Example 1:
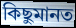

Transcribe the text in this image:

কিছুমানত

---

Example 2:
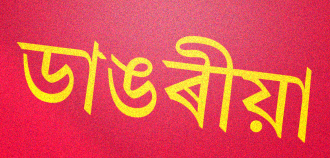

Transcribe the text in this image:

ডাঙৰীয়া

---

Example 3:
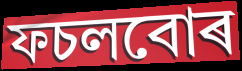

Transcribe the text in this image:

ফচলবোৰ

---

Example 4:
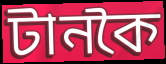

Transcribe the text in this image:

টানকৈ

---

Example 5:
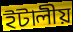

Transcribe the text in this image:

ইটালীয়